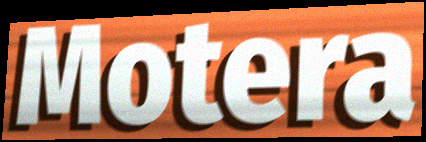
Motera